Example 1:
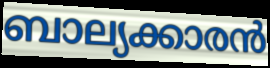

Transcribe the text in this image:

ബാല്യക്കാരൻ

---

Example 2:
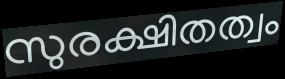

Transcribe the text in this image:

സുരക്ഷിതത്വം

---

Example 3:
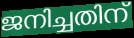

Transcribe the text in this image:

ജനിച്ചതിന്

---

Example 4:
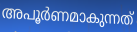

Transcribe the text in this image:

അപൂർണമാകുന്നത്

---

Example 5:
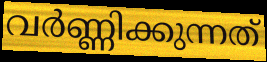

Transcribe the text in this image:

വർണ്ണിക്കുന്നത്